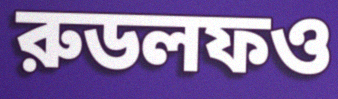
রুডলফও